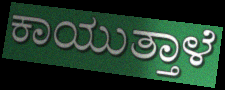
ಕಾಯುತ್ತಾಳೆ